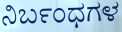
ನಿರ್ಬಂಧಗಳ